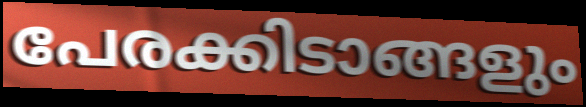
പേരക്കിടാങ്ങളും